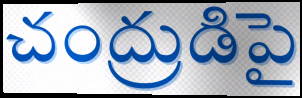
చంద్రుడిపై